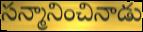
సన్మానించినాడు